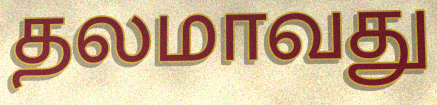
தலமாவது